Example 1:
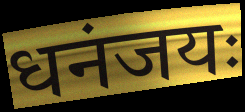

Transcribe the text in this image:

धनंजयः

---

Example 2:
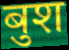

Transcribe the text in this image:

बुश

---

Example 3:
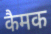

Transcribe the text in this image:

कैमक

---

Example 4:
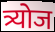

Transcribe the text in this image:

त्र्योज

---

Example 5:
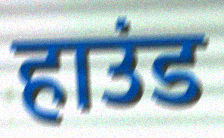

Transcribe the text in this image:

हाउंड